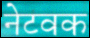
नेटवक